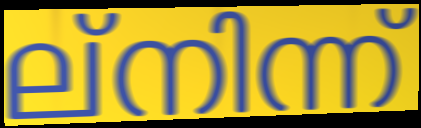
ല്നിന്ന്